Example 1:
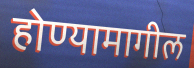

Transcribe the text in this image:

होण्यामागील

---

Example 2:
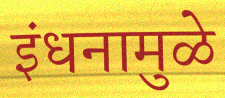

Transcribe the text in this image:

इंधनामुळे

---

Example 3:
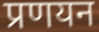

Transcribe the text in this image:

प्रणयन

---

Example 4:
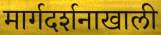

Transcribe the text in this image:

मार्गदर्शनाखाली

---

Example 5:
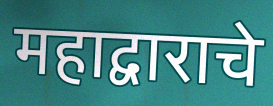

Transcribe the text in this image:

महाद्वाराचे